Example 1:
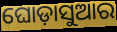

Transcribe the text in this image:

ଘୋଡ଼ାସୁଆର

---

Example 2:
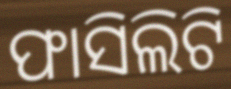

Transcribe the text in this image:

ଫାସିଲିଟି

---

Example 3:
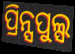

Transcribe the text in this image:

ପ୍ରିନ୍ସପୁଲ୍ସ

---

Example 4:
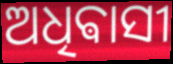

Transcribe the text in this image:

ଅଧିଵାସୀ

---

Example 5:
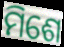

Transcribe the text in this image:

ମିଶେ